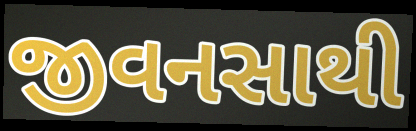
જીવનસાથી